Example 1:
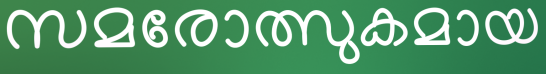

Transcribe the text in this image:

സമരോത്സുകമായ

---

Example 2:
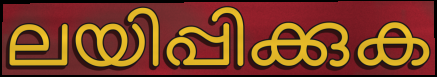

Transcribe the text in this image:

ലയിപ്പിക്കുക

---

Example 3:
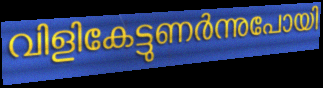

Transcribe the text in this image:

വിളികേട്ടുണർന്നുപോയി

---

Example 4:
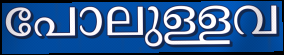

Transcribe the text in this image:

പോലുള്ളവ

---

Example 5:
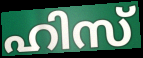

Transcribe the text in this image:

ഹിസ്